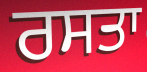
ਰਸਤਾ